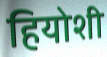
हियोशी